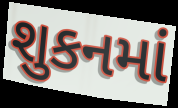
શુકનમાં